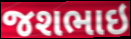
જશભાઇ